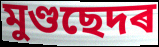
মুণ্ডছেদৰ